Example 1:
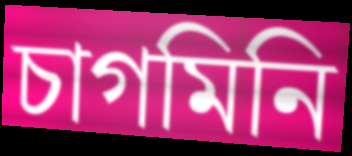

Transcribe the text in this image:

চাগমিনি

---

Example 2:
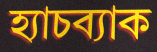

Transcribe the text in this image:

হ্যাচব্যাক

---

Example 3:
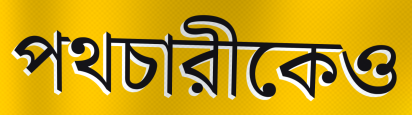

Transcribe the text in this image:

পথচারীকেও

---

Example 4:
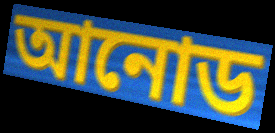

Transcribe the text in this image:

আনোড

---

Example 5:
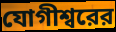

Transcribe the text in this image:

যোগীশ্বরের